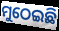
ମୁଠେଇଛି